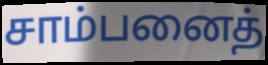
சாம்பனைத்